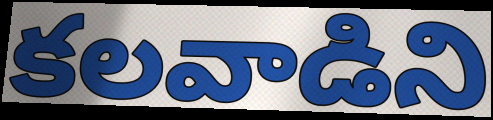
కలవాడిని